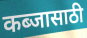
कब्जासाठी